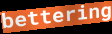
bettering